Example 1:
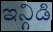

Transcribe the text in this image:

ఇన్గిడి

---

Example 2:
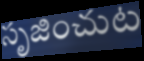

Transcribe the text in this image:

సృజించుట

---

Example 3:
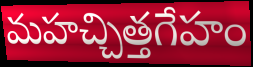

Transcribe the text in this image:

మహచ్చిత్తగేహం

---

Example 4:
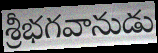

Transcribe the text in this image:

శ్రీభగవానుడు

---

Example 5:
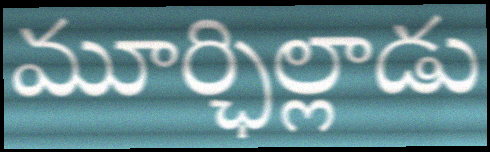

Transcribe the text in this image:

మూర్ఛిల్లాడు